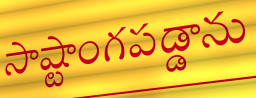
సాష్టాంగపడ్డాను